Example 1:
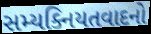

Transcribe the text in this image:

સમ્યક્નિયતવાદનો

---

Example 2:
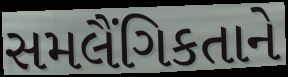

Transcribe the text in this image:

સમલૈંગિકતાને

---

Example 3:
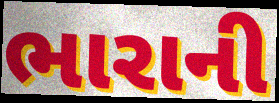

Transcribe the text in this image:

ભારાની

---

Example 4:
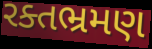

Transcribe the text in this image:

રક્તભ્રમણ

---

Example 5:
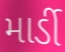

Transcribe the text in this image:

માર્ડી